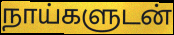
நாய்களுடன்